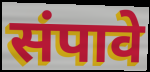
संपावे